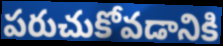
పరుచుకోవడానికి